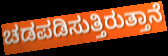
ಚಡಪಡಿಸುತ್ತಿರುತ್ತಾನೆ